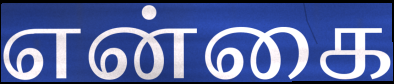
என்கை